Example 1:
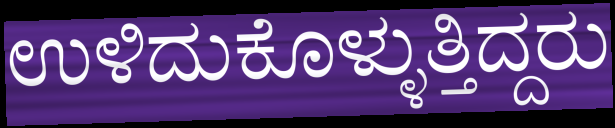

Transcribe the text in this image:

ಉಳಿದುಕೊಳ್ಳುತ್ತಿದ್ದರು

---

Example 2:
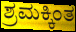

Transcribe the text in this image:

ಶ್ರಮಕ್ಕಿಂತ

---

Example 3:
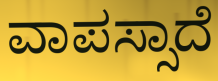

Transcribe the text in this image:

ವಾಪಸ್ಸಾದೆ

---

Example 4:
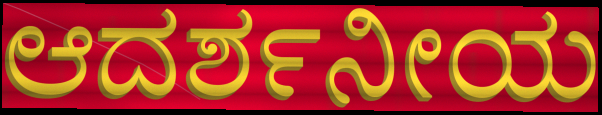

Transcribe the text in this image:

ಆದರ್ಶನೀಯ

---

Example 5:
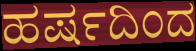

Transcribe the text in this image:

ಹರ್ಷದಿಂದ